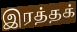
இரத்தக்